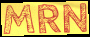
MRN